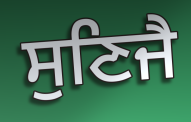
ਸੁਣਿਜੈ